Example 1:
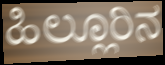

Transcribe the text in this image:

ಹಿಲ್ಲೂರಿನ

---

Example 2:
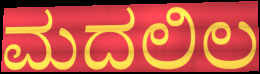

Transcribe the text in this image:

ಮದಲಿಲ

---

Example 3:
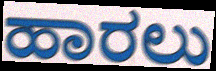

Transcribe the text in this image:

ಹಾರಲು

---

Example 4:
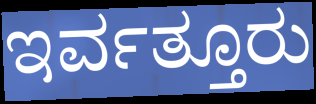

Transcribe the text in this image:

ಇರ್ವತ್ತೂರು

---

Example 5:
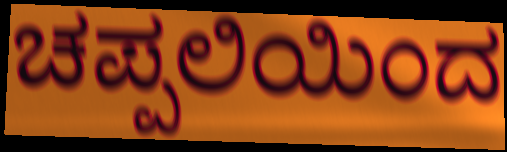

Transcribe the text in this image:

ಚಪ್ಪಲಿಯಿಂದ